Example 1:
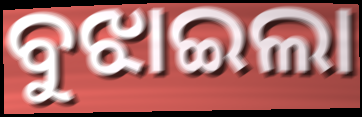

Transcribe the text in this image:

ବୁଝାଇଲା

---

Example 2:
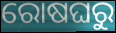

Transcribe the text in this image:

ରୋଷଘରୁ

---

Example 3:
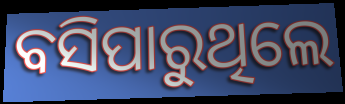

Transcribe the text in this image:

ବସିପାରୁଥିଲେ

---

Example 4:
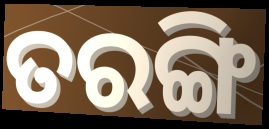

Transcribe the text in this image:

ତରଙ୍ଗି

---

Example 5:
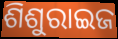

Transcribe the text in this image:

ଶିଶୁରାଇଜ